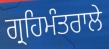
ਗ੍ਰਹਿਮੰਤਰਾਲੇ